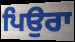
ਪਿਉਰਾ